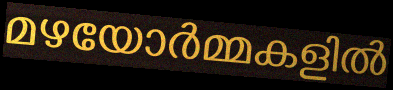
മഴയോർമ്മകളിൽ